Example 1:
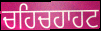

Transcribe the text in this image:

ਚਹਿਚਹਾਹਟ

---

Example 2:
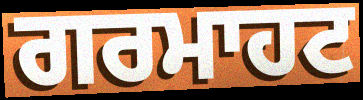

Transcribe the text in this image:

ਗਰਮਾਹਟ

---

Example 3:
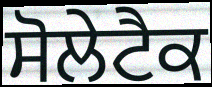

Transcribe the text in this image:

ਸੋਲੇਟੈਕ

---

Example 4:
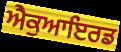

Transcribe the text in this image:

ਐਕੁਆਇਰਡ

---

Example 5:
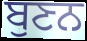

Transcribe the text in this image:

ਬੁਣਨ